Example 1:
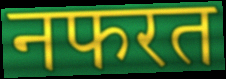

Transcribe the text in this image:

नफरत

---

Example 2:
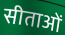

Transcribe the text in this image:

सीताओं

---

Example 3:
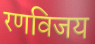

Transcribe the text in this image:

रणविजय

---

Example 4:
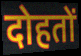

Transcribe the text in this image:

दोहतों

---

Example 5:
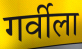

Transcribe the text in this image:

गर्वीला